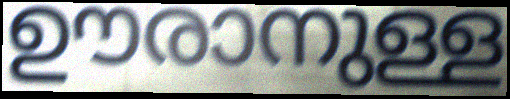
ഊരാനുള്ള